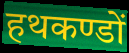
हथकण्डों